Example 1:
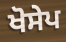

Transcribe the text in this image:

ਖੋਸੇਪ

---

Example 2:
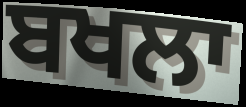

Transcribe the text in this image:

ਬਖਲਾ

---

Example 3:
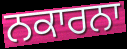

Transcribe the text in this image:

ਨਕਾਰਨਾ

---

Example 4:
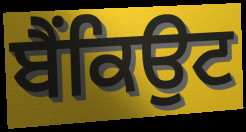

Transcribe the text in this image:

ਬੈਂਕਿਉਟ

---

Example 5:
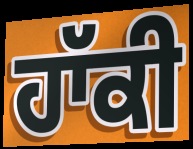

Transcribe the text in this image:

ਹਾੱਕੀ